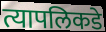
त्यापलिकडे